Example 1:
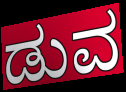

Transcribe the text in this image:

ಡುವ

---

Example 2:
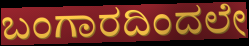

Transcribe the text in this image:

ಬಂಗಾರದಿಂದಲೇ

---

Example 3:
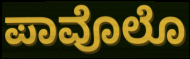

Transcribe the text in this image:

ಪಾವೊಲೊ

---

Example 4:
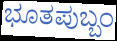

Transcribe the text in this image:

ಭೂತಪುಬ್ಬಂ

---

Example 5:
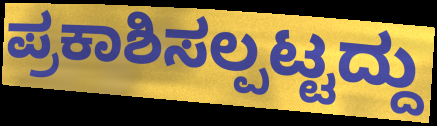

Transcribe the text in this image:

ಪ್ರಕಾಶಿಸಲ್ಪಟ್ಟದ್ದು